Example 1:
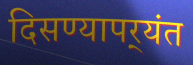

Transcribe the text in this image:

दिसण्यापर्यंत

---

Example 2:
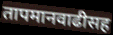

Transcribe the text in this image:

तापमानवाढीसह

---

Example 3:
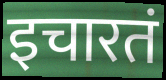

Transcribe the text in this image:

इचारतं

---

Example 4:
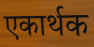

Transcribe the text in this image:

एकार्थक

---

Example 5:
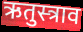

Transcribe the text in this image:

ऋतुस्त्राव